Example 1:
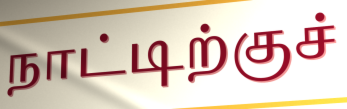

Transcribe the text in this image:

நாட்டிற்குச்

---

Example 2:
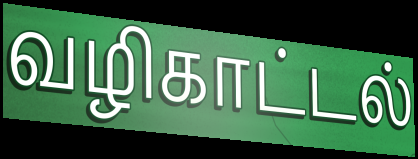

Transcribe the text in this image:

வழிகாட்டல்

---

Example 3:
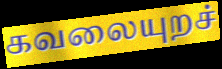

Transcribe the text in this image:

கவலையுறச்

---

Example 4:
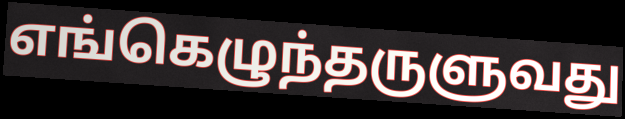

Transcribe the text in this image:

எங்கெழுந்தருளுவது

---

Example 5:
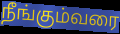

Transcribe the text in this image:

நீங்கும்வரை